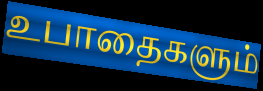
உபாதைகளும்